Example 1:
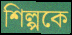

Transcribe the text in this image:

শিল্পকে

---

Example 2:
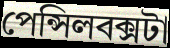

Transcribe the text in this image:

পেন্সিলবক্সটা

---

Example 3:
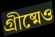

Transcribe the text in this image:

গ্রীষ্মেও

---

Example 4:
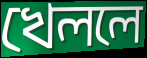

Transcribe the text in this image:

খেললে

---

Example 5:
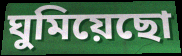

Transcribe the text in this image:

ঘুমিয়েছো